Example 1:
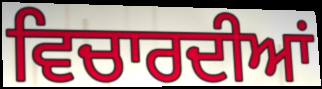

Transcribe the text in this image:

ਵਿਚਾਰਦੀਆਂ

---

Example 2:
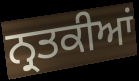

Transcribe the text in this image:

ਨ੍ਰਤਕੀਆਂ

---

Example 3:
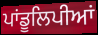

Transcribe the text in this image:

ਪਾਂਡੂਲਿਪੀਆਂ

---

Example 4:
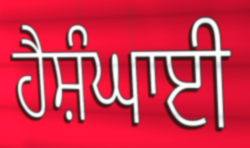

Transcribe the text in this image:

ਹੈਸ਼ੰਘਾਈ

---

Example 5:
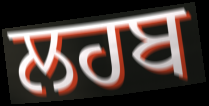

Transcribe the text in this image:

ਲਹਬ